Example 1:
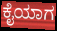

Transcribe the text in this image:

ಕೈಯಾಗ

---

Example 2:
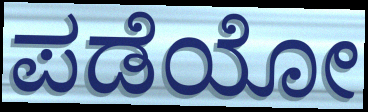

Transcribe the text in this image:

ಪಡೆಯೋ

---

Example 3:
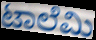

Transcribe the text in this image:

ಟಾಲೆಮಿ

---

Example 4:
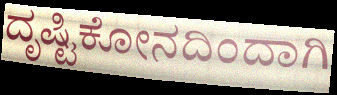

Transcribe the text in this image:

ದೃಷ್ಟಿಕೋನದಿಂದಾಗಿ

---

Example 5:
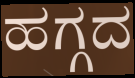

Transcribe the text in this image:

ಹಗ್ಗದ